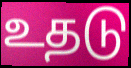
உதடு